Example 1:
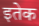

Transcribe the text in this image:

इतेक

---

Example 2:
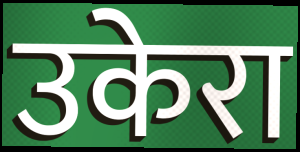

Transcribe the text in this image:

उकेरा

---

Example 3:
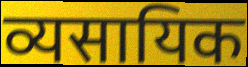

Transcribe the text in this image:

व्यसायिक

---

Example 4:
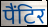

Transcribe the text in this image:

पैंटिर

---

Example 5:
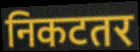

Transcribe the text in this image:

निकटतर